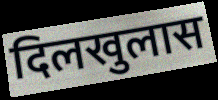
दिलखुलास